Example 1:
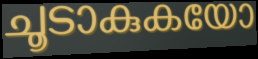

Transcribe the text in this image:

ചൂടാകുകയോ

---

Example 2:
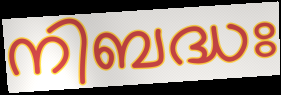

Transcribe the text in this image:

നിബദ്ധഃ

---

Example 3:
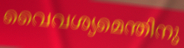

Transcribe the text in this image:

വൈവശ്യമെന്തിനു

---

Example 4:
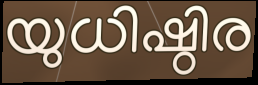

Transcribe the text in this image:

യുധിഷ്ഠിര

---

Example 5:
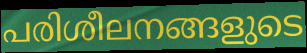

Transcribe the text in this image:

പരിശീലനങ്ങളുടെ